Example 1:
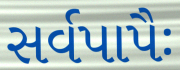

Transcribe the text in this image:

સર્વપાપૈઃ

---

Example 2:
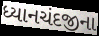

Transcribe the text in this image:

ધ્યાનચંદજીના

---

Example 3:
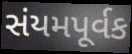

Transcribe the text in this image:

સંયમપૂર્વક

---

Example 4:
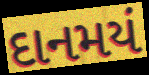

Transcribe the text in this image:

દાનમયં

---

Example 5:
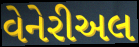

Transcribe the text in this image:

વેનેરીઅલ